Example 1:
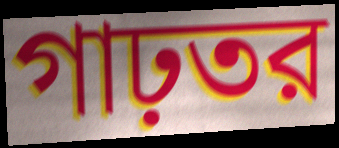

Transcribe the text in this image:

গাঢ়তর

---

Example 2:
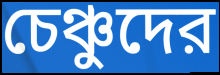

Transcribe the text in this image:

চেঞ্চুদের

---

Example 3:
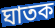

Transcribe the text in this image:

ঘাতক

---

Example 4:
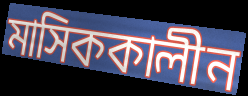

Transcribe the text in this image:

মাসিককালীন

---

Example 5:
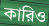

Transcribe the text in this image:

কারিও